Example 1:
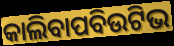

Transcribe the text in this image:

କାଲିବାପବିଉଟିଭ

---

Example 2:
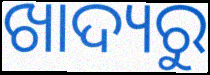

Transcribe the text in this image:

ଖାଦ୍ୟରୁ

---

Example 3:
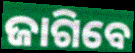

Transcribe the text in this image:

ଜାଗିବେ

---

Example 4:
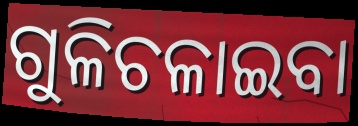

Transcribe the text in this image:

ଗୁଳିଚଳାଇବା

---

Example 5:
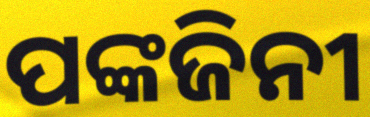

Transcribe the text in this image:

ପଙ୍କଜିନୀ